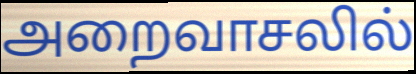
அறைவாசலில்